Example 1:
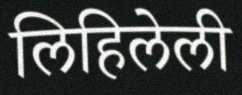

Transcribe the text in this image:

लिहिलेली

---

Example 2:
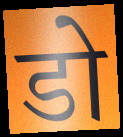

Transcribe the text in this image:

डो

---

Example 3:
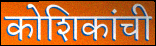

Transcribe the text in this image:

कोशिकांची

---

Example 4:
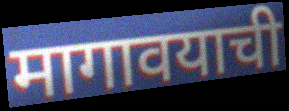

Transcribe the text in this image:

मागावयाची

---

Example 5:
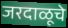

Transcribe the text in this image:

जरदाळूचे